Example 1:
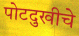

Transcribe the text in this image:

पोटदुखीचे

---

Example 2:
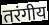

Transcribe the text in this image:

तरंगीय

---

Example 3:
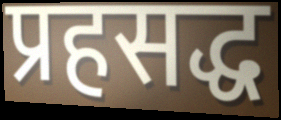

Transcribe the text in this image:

प्रहसद्ध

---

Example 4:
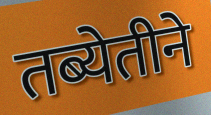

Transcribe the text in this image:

तब्येतीने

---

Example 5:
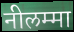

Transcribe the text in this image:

नीलम्मा